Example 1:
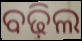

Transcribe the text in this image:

ବଢ଼ିଲ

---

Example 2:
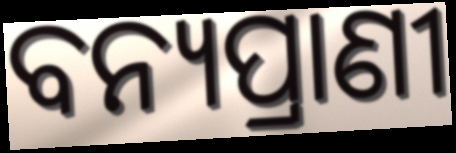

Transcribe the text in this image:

ବନ୍ୟପ୍ରାଣୀ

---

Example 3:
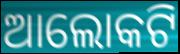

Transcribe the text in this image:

ଆଲୋକଟି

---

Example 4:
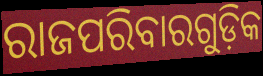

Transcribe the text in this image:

ରାଜପରିବାରଗୁଡ଼ିକ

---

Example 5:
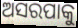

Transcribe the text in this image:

ଅସରପାକୁ